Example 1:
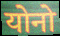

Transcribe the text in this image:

योनो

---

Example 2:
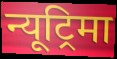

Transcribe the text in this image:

न्यूट्रिमा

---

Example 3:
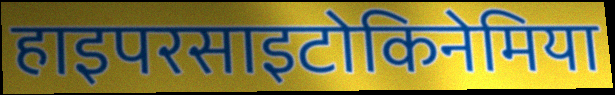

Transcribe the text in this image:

हाइपरसाइटोकिनेमिया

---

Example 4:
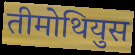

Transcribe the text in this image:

तीमोथियुस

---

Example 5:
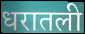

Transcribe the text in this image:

धरातली